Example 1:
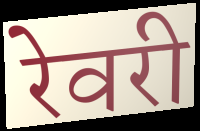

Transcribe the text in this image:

रेवरी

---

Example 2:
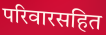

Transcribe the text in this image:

परिवारसहित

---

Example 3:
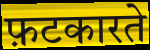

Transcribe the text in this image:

फ़टकारते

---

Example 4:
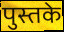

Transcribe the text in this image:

पुस्तके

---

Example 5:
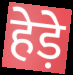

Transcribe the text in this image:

हेड़े